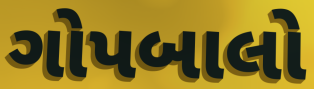
ગોપબાલો